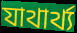
যাথার্থ্য